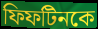
ফিফটিনকে